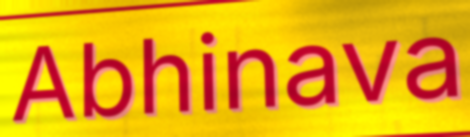
Abhinava